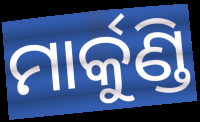
ମାର୍କୁଣ୍ଡି